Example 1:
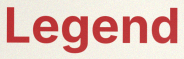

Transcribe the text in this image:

Legend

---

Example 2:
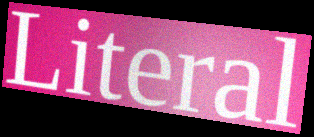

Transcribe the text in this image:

Literal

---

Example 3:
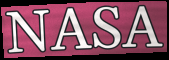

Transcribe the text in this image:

NASA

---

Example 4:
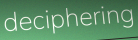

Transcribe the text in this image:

deciphering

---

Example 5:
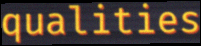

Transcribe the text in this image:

qualities